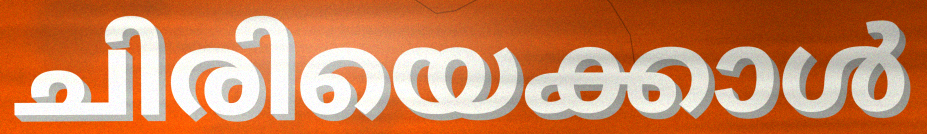
ചിരിയെക്കാൾ